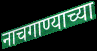
नाचगाण्याच्या